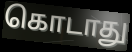
கொடாது